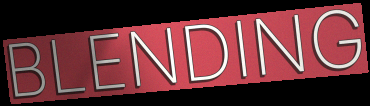
BLENDING